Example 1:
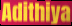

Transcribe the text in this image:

Adithiya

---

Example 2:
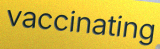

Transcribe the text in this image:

vaccinating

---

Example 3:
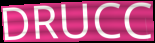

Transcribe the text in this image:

DRUCC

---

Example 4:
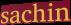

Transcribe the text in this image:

sachin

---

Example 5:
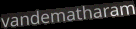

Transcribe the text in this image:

vandematharam